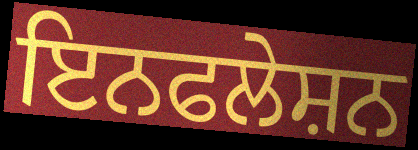
ਇਨਫਲੇਸ਼ਨ